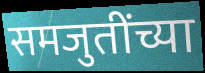
समजुतींच्या